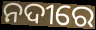
ନଦୀରେ